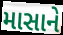
માસાને